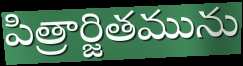
పిత్రార్జితమును